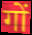
गों